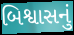
બિશ્વાસનું